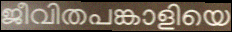
ജീവിതപങ്കാളിയെ